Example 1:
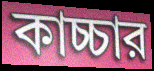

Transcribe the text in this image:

কাচ্চার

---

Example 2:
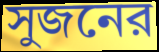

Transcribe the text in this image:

সুজনের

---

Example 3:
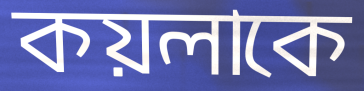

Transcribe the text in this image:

কয়লাকে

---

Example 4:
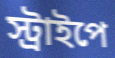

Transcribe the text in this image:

স্ট্রাইপে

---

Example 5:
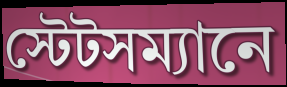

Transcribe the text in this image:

স্টেটসম্যানে